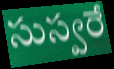
సుస్వరే